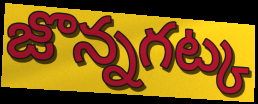
జొన్నగట్క